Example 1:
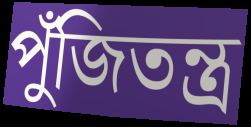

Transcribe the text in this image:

পুঁজিতন্ত্র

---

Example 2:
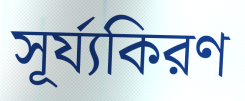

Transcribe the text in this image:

সূর্য্যকিরণ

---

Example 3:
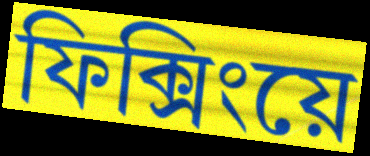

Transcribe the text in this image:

ফিক্সিংয়ে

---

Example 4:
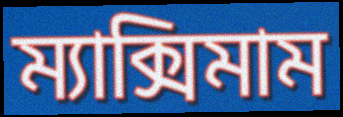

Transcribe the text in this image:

ম্যাক্সিমাম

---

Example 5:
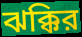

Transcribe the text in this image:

ঝক্কির